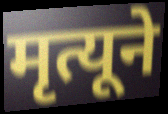
मृत्यूने